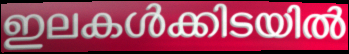
ഇലകൾക്കിടയിൽ